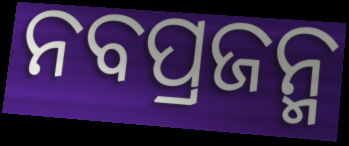
ନବପ୍ରଜନ୍ମ